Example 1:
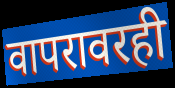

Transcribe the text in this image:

वापरावरही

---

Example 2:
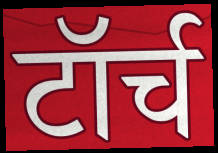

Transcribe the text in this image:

टॉर्च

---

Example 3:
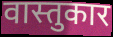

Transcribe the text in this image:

वास्तुकार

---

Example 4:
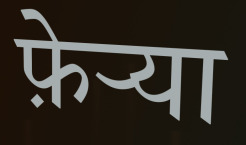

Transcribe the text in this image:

फ़ेर्‍या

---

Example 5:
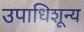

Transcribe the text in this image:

उपाधिशून्य